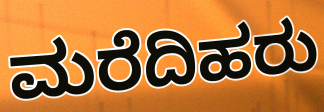
ಮರೆದಿಹರು